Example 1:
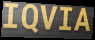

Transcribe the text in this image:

IQVIA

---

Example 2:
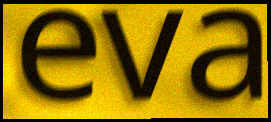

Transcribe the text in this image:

eva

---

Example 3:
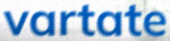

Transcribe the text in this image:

vartate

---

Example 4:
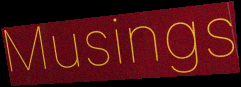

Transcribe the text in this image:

Musings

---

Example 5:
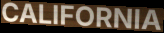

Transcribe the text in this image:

CALIFORNIA